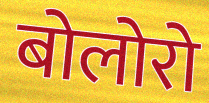
बोलोरो